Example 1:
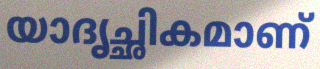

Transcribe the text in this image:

യാദൃച്ഛികമാണ്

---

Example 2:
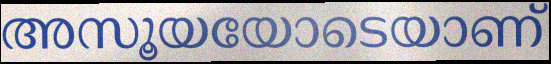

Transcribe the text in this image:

അസൂയയോടെയാണ്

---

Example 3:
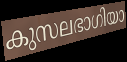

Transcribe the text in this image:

കുസലഭാഗിയാ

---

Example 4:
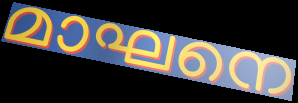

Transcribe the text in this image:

മാഘനെ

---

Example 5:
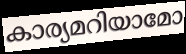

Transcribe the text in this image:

കാര്യമറിയാമോ